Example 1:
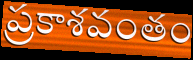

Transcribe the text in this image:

ప్రకాశవంతం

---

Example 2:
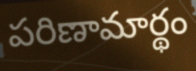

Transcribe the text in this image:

పరిణామార్థం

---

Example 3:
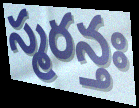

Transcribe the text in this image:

స్మరన్తః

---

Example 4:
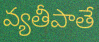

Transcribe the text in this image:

వ్యతీపాతే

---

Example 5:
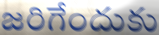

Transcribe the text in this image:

జరిగేందుకు